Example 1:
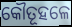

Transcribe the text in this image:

କୌତୂହଳେ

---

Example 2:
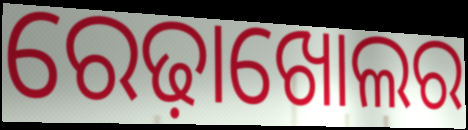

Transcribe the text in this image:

ରେଢ଼ାଖୋଲର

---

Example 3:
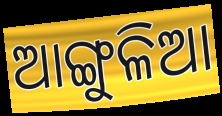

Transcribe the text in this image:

ଆଙ୍ଗୁଳିଆ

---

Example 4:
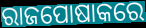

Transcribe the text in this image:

ରାଜପୋଷାକରେ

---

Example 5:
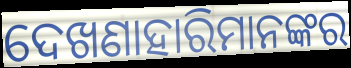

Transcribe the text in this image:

ଦେଖଣାହାରିମାନଙ୍କର